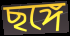
ছঙ্গে